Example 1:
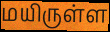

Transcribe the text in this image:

மயிருள்ள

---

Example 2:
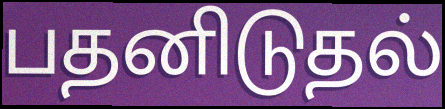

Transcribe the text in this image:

பதனிடுதல்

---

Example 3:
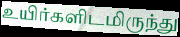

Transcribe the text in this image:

உயிர்களிடமிருந்து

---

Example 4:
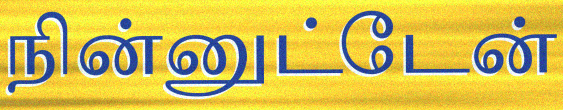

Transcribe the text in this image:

நின்னுட்டேன்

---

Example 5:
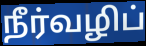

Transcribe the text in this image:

நீர்வழிப்